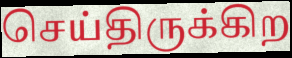
செய்திருக்கிற